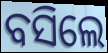
ବସିଲେ